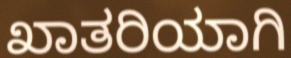
ಖಾತರಿಯಾಗಿ